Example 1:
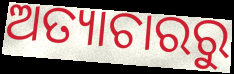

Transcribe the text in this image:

ଅତ୍ୟାଚାରରୁ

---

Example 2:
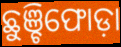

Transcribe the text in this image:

ଛୁଞ୍ଚିଫୋଡ଼ା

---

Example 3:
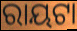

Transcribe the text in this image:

ରାୟଟା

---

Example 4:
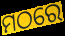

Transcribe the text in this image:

ମଠରେ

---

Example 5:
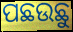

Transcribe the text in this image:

ପଛଉଛୁ